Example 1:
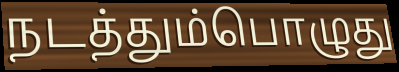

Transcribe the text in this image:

நடத்தும்பொழுது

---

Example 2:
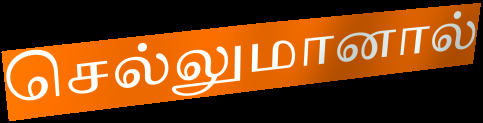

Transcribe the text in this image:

செல்லுமானால்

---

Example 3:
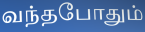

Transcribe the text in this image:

வந்தபோதும்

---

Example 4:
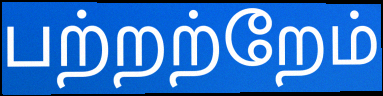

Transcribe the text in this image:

பற்றற்றேம்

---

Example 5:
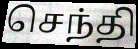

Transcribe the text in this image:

செந்தி